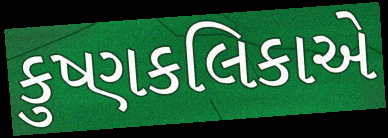
કુષ્ણકલિકાએ